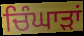
ਚਿੰਘਾੜਾਂ